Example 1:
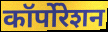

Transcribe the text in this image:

कॉर्पोरेशन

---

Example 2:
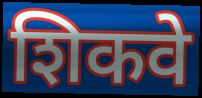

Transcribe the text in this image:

शिकवे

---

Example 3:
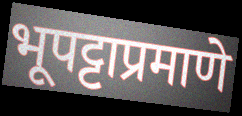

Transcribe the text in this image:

भूपट्टाप्रमाणे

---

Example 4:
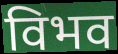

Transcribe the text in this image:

विभव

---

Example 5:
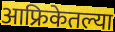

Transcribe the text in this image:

आफ्रिकेतल्या